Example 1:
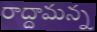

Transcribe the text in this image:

రాద్దామన్న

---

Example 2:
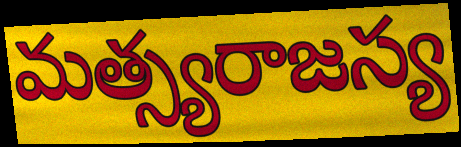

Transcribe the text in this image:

మత్స్యరాజస్య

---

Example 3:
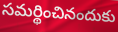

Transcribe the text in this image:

సమర్థించినందుకు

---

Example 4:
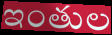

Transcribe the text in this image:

ఇంతుల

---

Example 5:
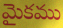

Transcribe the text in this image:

మైకము